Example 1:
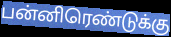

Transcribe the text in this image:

பன்னிரெண்டுக்கு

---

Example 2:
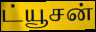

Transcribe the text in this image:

ட்யூசன்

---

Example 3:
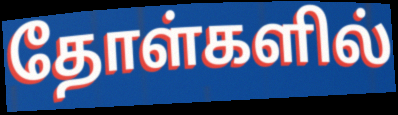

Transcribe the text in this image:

தோள்களில்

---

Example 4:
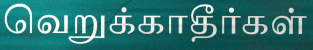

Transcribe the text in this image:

வெறுக்காதீர்கள்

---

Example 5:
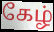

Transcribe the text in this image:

கேழ்